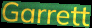
Garrett